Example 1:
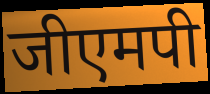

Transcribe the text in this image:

जीएमपी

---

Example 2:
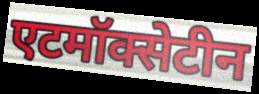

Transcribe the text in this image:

एटमॉक्सेटीन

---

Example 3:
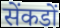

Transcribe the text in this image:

सेंकडों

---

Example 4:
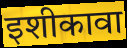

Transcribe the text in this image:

इशीकावा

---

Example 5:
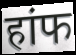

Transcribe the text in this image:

हांफ